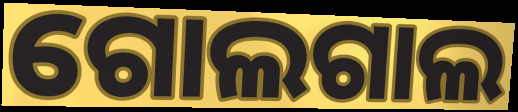
ଗୋଲଗାଲ